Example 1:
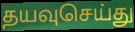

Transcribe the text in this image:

தயவுசெய்து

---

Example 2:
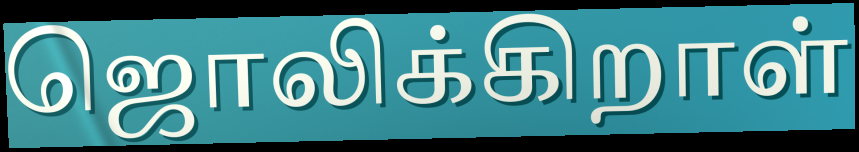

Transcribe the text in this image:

ஜொலிக்கிறாள்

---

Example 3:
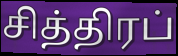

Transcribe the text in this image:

சித்திரப்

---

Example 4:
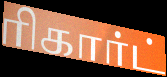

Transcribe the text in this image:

ரிகார்ட்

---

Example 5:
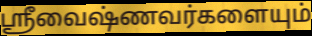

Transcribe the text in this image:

ஸ்ரீவைஷ்ணவர்களையும்